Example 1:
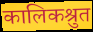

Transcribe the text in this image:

कालिकश्रुत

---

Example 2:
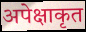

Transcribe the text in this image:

अपेक्षाकृत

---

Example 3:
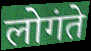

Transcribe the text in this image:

लोगंते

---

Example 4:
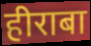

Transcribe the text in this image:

हीराबा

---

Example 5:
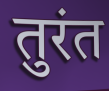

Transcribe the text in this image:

तुरंत